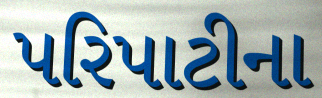
પરિપાટીના